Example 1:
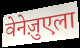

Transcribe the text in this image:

वेनेज़ुएला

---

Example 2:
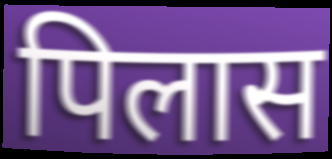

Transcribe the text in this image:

पिलास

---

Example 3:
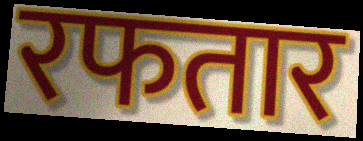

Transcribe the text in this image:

रफतार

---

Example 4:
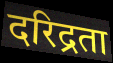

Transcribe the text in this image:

दरिद्रता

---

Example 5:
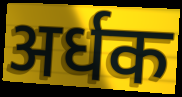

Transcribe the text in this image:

अर्धक